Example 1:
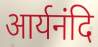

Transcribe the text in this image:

आर्यनंदि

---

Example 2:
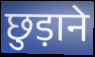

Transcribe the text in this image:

छुड़ाने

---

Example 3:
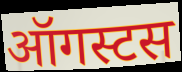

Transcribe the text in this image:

ऑगस्टस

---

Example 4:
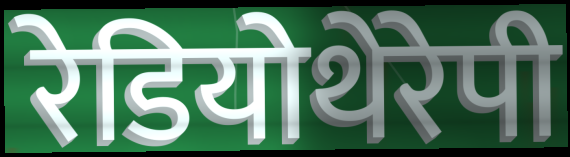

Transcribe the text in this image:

रेडियोथेरेपी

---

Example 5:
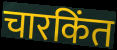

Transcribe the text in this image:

चारकिंत